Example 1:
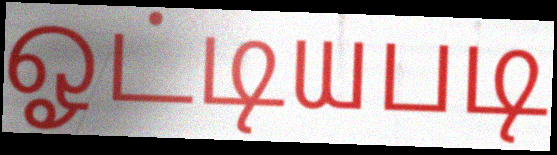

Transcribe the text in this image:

ஓட்டியபடி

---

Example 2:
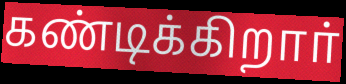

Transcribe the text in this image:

கண்டிக்கிறார்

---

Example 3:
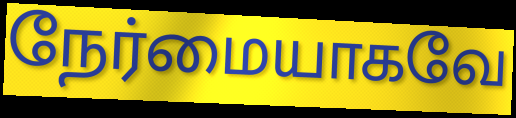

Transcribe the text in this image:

நேர்மையாகவே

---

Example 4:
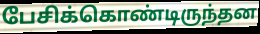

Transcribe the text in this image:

பேசிக்கொண்டிருந்தன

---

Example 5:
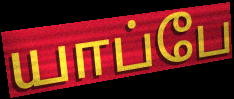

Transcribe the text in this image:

யாப்பே